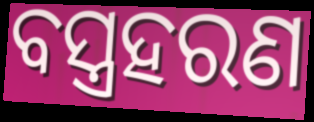
ବସ୍ତ୍ରହରଣ